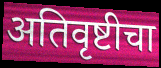
अतिवृष्टीचा